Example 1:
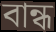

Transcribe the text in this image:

বান্ধ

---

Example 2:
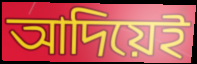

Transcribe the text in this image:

আদিয়েই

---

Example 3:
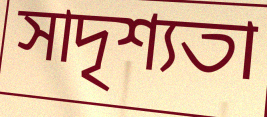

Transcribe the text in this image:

সাদৃশ্যতা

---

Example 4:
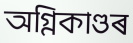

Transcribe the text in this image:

অগ্নিকাণ্ডৰ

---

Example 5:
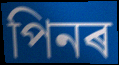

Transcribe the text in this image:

পিনৰ